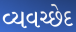
વ્યવચ્છેદ